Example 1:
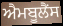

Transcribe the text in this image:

ਐਮਬੂਲੈਂਸ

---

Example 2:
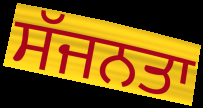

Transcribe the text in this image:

ਸੱਜਨਤਾ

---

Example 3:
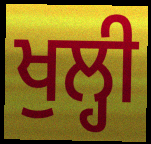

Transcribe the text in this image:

ਖੁਲ੍ਹੀ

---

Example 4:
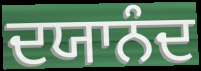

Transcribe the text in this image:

ਦਯਾਨੰਦ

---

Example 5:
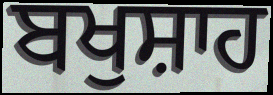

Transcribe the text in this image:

ਬਖੁਸ਼ਾਹ